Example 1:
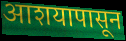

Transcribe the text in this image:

आशयापासून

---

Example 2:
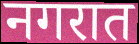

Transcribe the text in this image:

नगरात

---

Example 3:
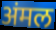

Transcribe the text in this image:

अंमल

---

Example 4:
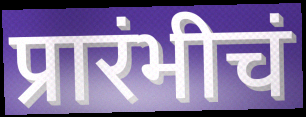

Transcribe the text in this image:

प्रारंभीचं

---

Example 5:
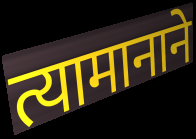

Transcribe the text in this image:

त्यामानाने